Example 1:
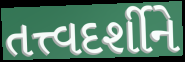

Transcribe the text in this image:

તત્ત્વદર્શીને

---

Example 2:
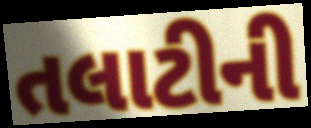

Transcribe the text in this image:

તલાટીની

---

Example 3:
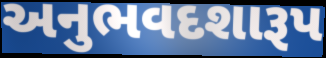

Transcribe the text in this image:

અનુભવદશારૂપ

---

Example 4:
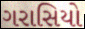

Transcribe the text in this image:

ગરાસિયો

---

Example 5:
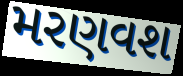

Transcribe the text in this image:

મરણવશ